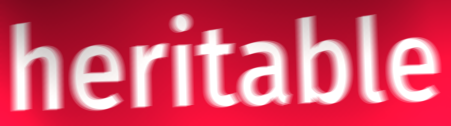
heritable